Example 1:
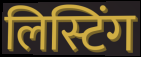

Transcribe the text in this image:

लिस्टिंग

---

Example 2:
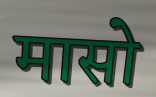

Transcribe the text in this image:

मासो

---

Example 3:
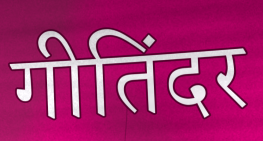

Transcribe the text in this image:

गीतिंदर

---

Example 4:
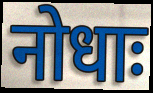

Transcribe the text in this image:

नोधाः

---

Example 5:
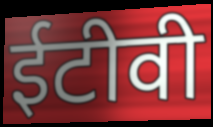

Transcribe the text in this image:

ईटीवी